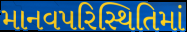
માનવપરિસ્થિતિમાં